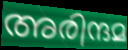
അരിന്ദമ